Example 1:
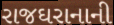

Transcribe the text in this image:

રાજઘરાનાની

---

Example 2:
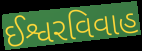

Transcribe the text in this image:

ઈશ્વરવિવાહ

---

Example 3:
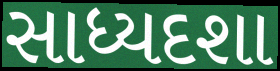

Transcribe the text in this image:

સાધ્યદશા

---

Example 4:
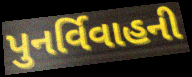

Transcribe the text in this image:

પુનર્વિવાહની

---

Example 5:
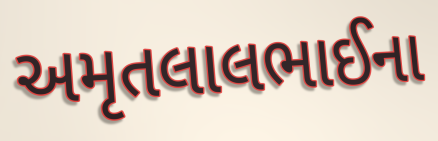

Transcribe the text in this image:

અમૃતલાલભાઈના